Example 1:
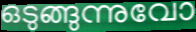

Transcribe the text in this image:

ഒടുങ്ങുന്നുവോ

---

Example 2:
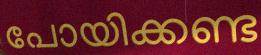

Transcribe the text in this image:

പോയിക്കണ്ട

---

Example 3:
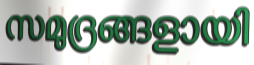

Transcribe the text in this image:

സമുദ്രങ്ങളായി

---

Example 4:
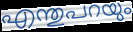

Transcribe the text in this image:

എന്തുപറയും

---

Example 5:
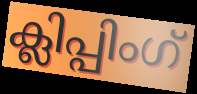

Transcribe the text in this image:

ക്ലിപ്പിംഗ്